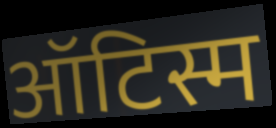
ऑटिस्म